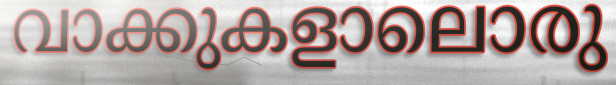
വാക്കുകളാലൊരു